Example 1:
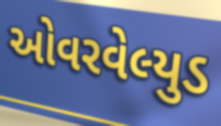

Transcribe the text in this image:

ઓવરવેલ્યુડ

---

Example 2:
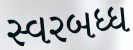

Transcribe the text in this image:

સ્વરબધ્ધ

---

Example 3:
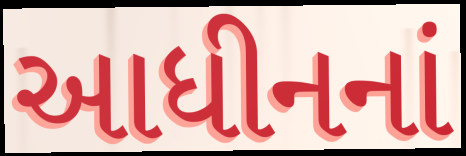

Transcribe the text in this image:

આધીનનાં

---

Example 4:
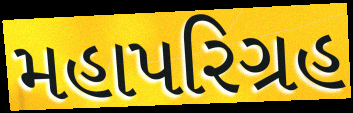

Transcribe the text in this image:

મહાપરિગ્રહ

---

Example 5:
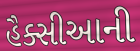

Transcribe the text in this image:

હૈક્સીઆની